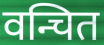
वन्चित